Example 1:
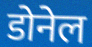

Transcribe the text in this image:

डोनेल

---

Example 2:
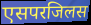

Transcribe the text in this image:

एसपरजिलस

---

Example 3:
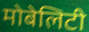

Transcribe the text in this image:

मोबेलिटी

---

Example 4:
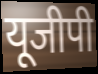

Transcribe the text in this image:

यूजीपी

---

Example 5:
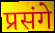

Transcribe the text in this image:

प्रसंगे